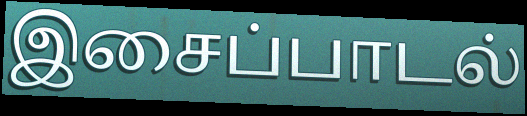
இசைப்பாடல்